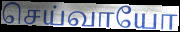
செய்வாயோ